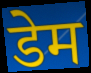
डेम